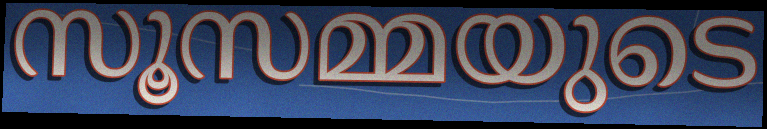
സൂസമ്മയുടെ